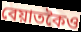
বেয়াতকৈও